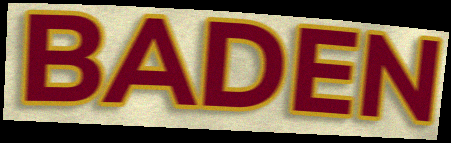
BADEN